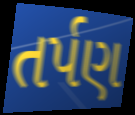
તર્પણ